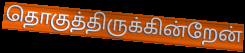
தொகுத்திருக்கின்றேன்